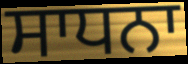
ਸਾਧਨਾ